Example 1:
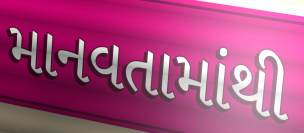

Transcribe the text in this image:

માનવતામાંથી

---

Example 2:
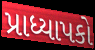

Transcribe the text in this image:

પ્રાધ્યાપકો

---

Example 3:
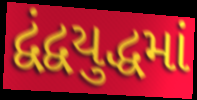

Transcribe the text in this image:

દ્વંદ્વયુદ્ધમાં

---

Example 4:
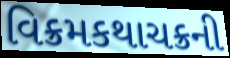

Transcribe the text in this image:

વિક્રમકથાચક્રની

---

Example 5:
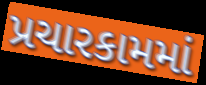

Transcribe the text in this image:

પ્રચારકામમાં